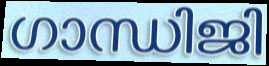
ഗാന്ധിജി